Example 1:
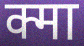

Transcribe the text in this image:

क्मा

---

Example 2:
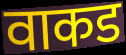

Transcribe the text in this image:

वाकड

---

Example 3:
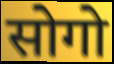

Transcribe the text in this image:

सोगो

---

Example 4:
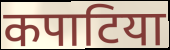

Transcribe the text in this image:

कपाटिया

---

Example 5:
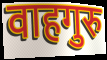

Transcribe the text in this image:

वाहगुरु